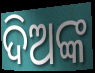
ଦିଅଙ୍କ